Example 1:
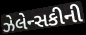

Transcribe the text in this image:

ઝેલેન્સકીની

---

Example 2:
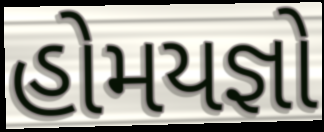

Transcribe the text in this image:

હોમયજ્ઞો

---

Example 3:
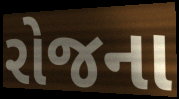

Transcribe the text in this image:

રોજના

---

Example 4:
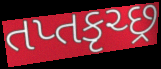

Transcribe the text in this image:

તપ્તકૃચ્છ્ર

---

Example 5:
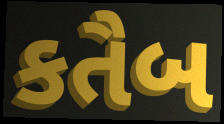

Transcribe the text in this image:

કતૈબ